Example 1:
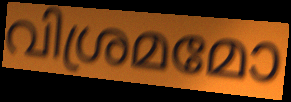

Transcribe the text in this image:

വിശ്രമമോ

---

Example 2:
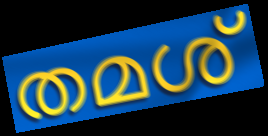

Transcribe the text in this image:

തമശ്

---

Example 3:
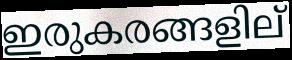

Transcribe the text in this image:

ഇരുകരങ്ങളില്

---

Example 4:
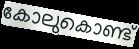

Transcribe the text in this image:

കോലുകൊണ്ട്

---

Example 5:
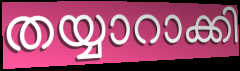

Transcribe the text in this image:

തയ്യാറാക്കി